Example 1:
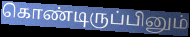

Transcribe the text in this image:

கொண்டிருப்பினும்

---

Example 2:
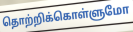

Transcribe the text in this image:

தொற்றிக்கொள்ளுமோ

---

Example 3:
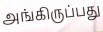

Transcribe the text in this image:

அங்கிருப்பது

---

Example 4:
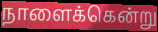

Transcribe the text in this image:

நாளைக்கென்று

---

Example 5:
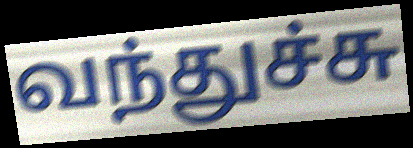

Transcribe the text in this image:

வந்துச்சு